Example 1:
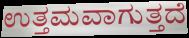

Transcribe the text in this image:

ಉತ್ತಮವಾಗುತ್ತದೆ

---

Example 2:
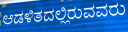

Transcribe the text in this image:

ಆಡಳಿತದಲ್ಲಿರುವವರು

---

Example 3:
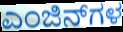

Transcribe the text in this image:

ಎಂಜಿನ್‌ಗಳ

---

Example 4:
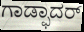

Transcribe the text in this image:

ಗಾಡ್ಫಾದರ್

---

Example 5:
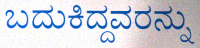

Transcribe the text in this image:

ಬದುಕಿದ್ದವರನ್ನು